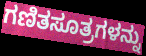
ಗಣಿತಸೂತ್ರಗಳನ್ನು